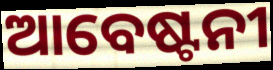
ଆବେଷ୍ଟନୀ